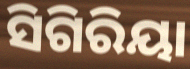
ସିଗିରିୟା